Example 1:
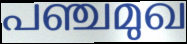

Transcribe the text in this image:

പഞ്ചമുഖ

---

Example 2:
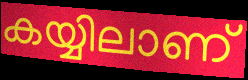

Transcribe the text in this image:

കയ്യിലാണ്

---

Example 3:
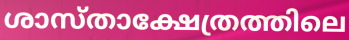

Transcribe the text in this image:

ശാസ്താക്ഷേത്രത്തിലെ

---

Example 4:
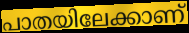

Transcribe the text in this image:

പാതയിലേക്കാണ്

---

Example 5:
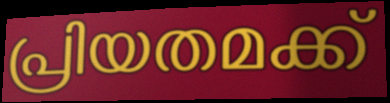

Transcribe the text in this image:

പ്രിയതമക്ക്